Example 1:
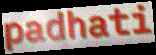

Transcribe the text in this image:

padhati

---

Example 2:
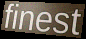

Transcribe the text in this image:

finest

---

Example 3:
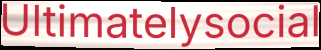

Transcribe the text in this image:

Ultimatelysocial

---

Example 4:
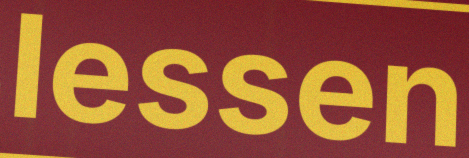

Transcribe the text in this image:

lessen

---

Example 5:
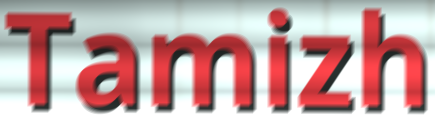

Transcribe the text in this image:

Tamizh